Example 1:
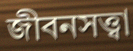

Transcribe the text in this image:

জীবনসত্ত্বা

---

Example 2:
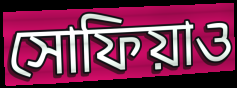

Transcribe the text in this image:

সোফিয়াও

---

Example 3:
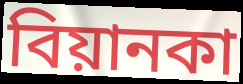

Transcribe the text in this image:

বিয়ানকা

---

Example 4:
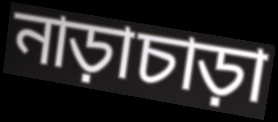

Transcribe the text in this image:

নাড়াচাড়া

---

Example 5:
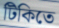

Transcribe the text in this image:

টিকিতে